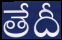
తేదీ